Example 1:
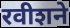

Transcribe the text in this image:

रवीशने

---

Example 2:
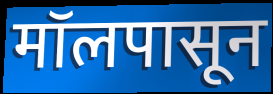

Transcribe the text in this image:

मॉलपासून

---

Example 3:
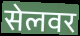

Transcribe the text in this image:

सेलवर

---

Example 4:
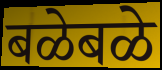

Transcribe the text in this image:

बळेबळे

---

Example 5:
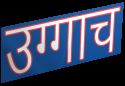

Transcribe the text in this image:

उग्गाच